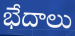
భేదాలు